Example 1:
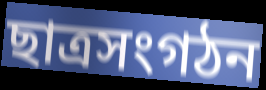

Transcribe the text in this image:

ছাত্রসংগঠন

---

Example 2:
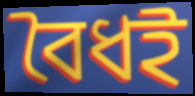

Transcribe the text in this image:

বৈধই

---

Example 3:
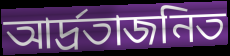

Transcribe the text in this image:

আর্দ্রতাজনিত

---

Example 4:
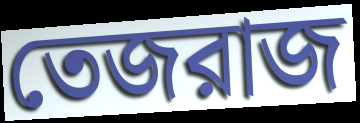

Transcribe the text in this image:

তেজরাজ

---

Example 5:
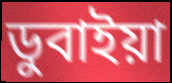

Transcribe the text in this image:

ডুবাইয়া